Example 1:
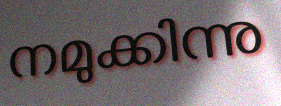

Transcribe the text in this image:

നമുക്കിന്നു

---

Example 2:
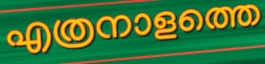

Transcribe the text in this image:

എത്രനാളത്തെ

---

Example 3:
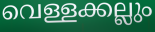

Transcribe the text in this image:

വെള്ളക്കല്ലും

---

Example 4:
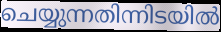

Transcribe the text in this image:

ചെയ്യുന്നതിന്നിടയിൽ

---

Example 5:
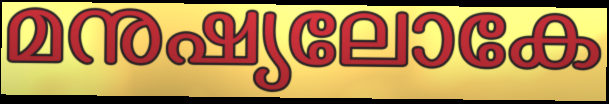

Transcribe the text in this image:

മനുഷ്യലോകേ